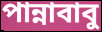
পান্নাবাবু